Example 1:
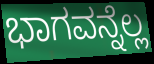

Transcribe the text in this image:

ಭಾಗವನ್ನೆಲ್ಲ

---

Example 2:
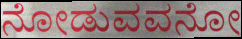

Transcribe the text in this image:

ನೋಡುವವನೋ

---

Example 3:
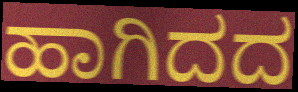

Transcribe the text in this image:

ಹಾಗಿದದ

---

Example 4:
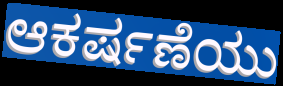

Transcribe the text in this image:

ಆಕರ್ಷಣೆಯು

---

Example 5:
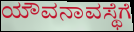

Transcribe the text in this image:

ಯೌವನಾವಸ್ಥೆಗೆ